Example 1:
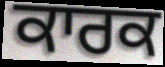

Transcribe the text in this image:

ਕਾਰਕ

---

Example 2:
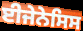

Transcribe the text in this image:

ਈਜੇਨੇਸਿਸ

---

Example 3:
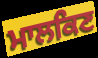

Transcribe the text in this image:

ਮਾਲਕਿਣ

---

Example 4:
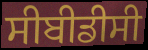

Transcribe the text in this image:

ਸੀਬੀਡੀਸੀ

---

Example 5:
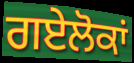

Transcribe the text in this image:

ਗਏਲੋਕਾਂ